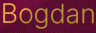
Bogdan